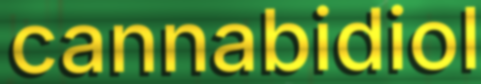
cannabidiol